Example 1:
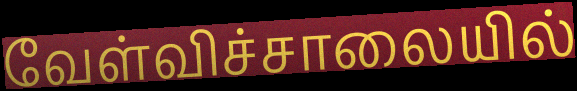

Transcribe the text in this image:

வேள்விச்சாலையில்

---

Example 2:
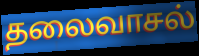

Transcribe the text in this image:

தலைவாசல்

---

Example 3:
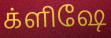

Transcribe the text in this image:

க்ளிஷே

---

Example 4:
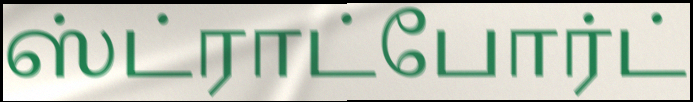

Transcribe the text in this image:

ஸ்ட்ராட்போர்ட்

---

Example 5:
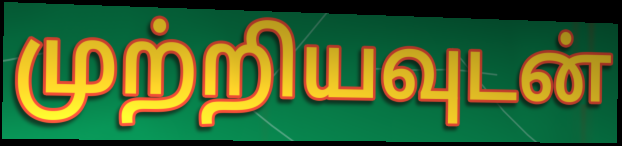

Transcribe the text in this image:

முற்றியவுடன்